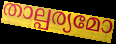
താല്പര്യമോ